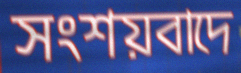
সংশয়বাদে